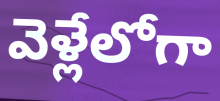
వెళ్లేలోగా